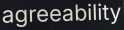
agreeability